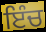
ਇੰਚ